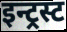
इन्ट्रस्ट